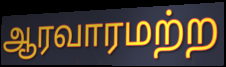
ஆரவாரமற்ற